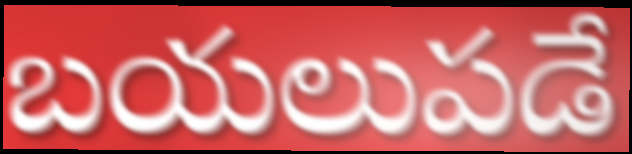
బయలుపడే